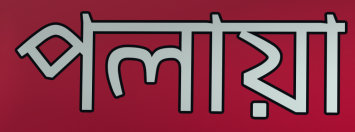
পলায়া